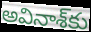
అవినాశ్‌కు